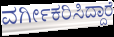
ವರ್ಗೀಕರಿಸಿದ್ದಾರೆ